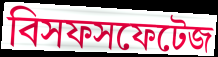
বিসফসফেটেজ